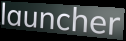
launcher